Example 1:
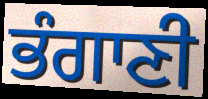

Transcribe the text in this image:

ਭੰਗਾਣੀ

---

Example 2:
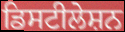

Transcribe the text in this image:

ਡਿਸਟੀਲੇਸ਼ਨ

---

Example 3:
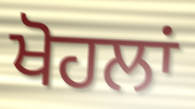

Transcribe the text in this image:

ਖੋਹਲਾਂ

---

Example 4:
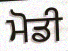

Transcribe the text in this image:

ਮੋਡੀ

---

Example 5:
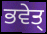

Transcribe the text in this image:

ਭਵੇਤ੍